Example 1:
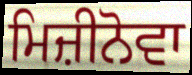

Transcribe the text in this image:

ਮਿਜ਼ੀਨੋਵਾ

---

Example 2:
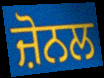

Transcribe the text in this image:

ਜ਼ੋਨਲ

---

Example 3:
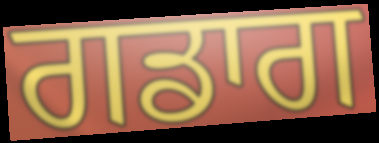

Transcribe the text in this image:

ਗਡਾਗ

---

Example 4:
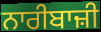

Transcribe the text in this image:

ਨਾਰੀਬਾਜ਼ੀ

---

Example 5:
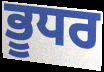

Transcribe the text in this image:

ਭੂਧਰ